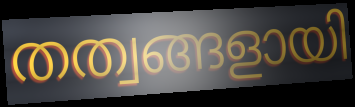
തത്വങ്ങളായി